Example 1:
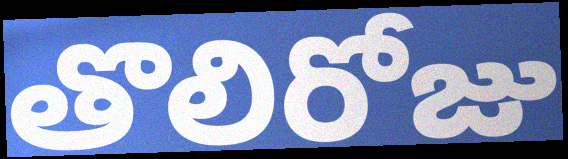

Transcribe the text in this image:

తొలిరోజు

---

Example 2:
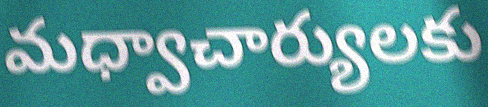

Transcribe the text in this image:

మధ్వాచార్యులకు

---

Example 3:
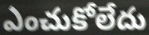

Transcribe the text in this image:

ఎంచుకోలేదు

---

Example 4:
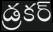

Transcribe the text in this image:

డ్రకర్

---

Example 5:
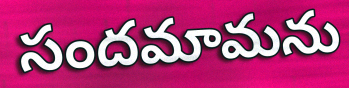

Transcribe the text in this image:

సందమామను